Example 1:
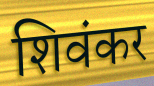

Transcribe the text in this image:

शिवंकर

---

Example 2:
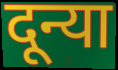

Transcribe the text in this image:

दून्या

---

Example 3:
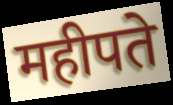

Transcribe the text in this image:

महीपते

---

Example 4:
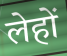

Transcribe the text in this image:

लेहों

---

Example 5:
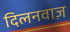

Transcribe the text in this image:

दिलनवाज़